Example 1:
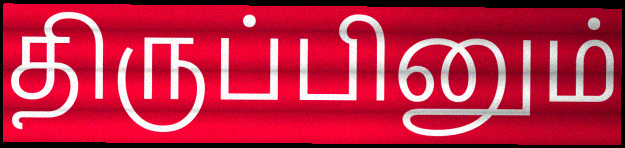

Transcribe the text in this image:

திருப்பினும்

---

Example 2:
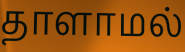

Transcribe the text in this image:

தாளாமல்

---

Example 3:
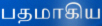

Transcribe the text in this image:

பதமாகிய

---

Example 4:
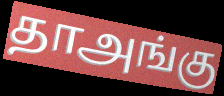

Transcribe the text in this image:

தாஅங்கு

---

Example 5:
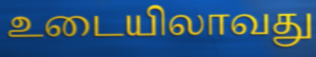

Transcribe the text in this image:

உடையிலாவது